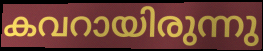
കവറായിരുന്നു